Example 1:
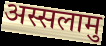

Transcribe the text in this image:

अस्सलामु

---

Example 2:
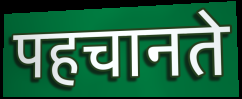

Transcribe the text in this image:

पहचानते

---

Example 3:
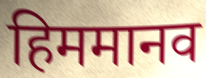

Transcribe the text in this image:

हिममानव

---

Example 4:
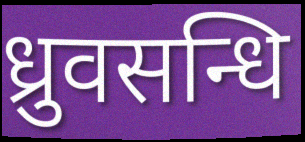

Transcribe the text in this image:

ध्रुवसन्धि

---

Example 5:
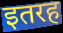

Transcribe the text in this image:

इतरह